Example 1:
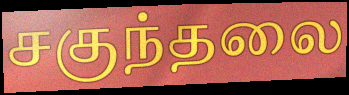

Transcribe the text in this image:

சகுந்தலை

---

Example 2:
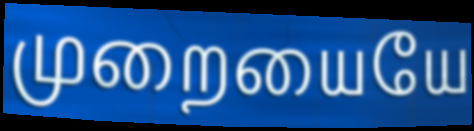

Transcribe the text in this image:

முறையையே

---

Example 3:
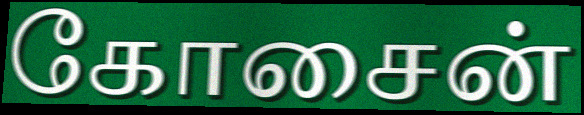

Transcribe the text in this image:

கோசைன்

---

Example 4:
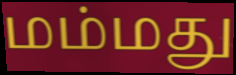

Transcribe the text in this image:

மம்மது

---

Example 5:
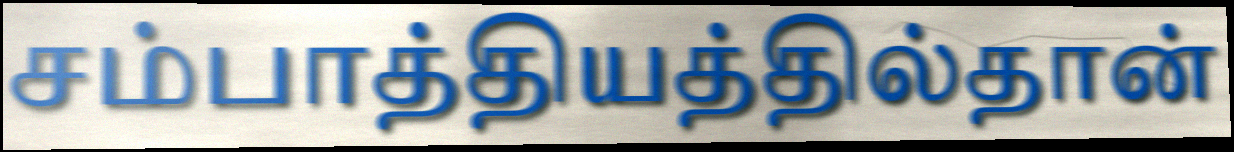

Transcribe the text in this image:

சம்பாத்தியத்தில்தான்